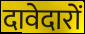
दावेदारों